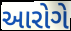
આરોગે